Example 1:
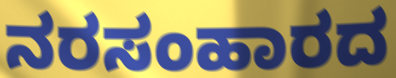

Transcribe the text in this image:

ನರಸಂಹಾರದ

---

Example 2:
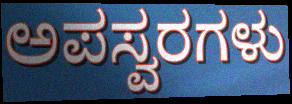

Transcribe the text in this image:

ಅಪಸ್ವರಗಳು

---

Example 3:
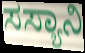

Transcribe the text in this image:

ಸಸ್ಯಾನಿ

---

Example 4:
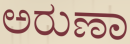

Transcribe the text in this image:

ಅರುಣಾ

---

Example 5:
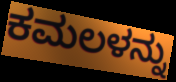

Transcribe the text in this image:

ಕಮಲಳನ್ನು